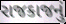
રાજકાજનું